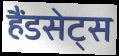
हैंडसेट्स